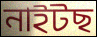
নাইটছ